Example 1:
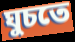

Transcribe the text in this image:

ঘুচতে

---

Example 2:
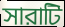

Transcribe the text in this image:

সারাটি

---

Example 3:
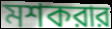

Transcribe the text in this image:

মশকরার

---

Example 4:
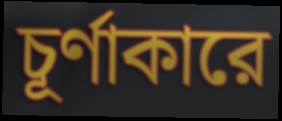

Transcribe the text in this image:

চূর্ণাকারে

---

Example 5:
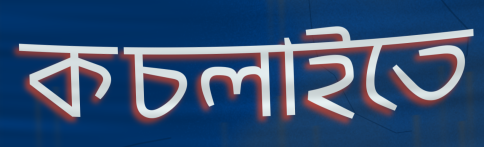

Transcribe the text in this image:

কচলাইতে